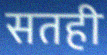
सतही